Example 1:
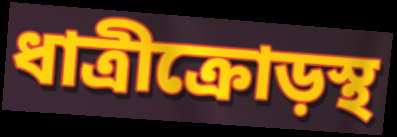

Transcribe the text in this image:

ধাত্রীক্রোড়স্থ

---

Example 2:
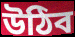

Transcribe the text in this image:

উঠিব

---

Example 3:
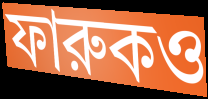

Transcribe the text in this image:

ফারুকও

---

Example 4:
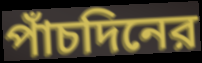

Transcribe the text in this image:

পাঁচদিনের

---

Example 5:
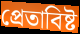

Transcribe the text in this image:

প্রেতাবিষ্ট